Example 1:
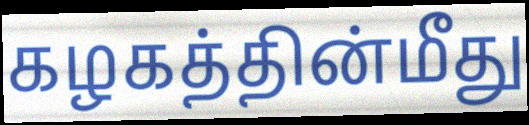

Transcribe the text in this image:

கழகத்தின்மீது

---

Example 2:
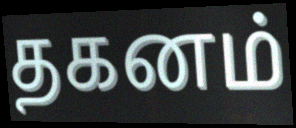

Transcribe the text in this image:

தகனம்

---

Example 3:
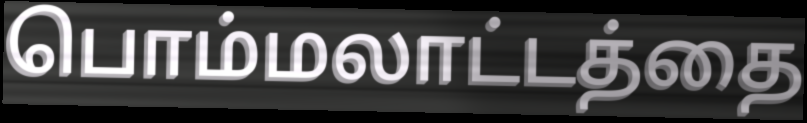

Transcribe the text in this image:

பொம்மலாட்டத்தை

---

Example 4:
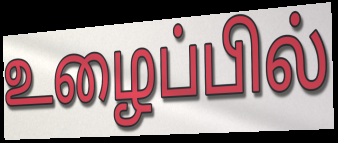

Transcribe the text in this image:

உழைப்பில்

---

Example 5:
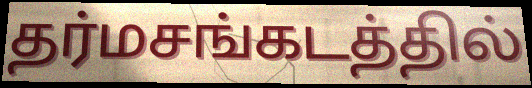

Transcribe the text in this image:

தர்மசங்கடத்தில்